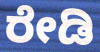
ರೇಡಿ